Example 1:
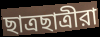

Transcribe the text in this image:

ছাত্রছাত্রীরা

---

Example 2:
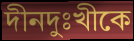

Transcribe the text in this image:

দীনদুঃখীকে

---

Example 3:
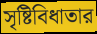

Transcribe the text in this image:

সৃষ্টিবিধাতার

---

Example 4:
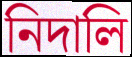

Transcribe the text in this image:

নিদালি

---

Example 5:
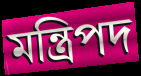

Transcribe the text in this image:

মন্ত্রিপদ